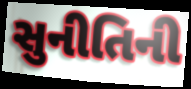
સુનીતિની